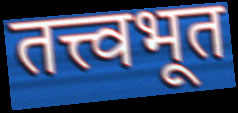
तत्त्वभूत